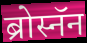
ब्रोस्नॅन